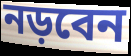
নড়বেন